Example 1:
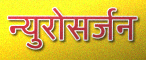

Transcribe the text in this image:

न्युरोसर्जन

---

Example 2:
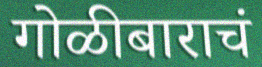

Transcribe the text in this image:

गोळीबाराचं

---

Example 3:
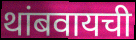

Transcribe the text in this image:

थांबवायची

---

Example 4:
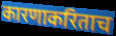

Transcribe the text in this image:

कारणाकरिताच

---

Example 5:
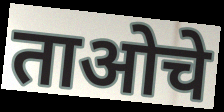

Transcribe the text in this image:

ताओचे